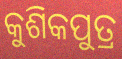
କୁଶିକପୁତ୍ର